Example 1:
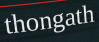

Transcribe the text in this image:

thongath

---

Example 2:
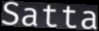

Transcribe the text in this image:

Satta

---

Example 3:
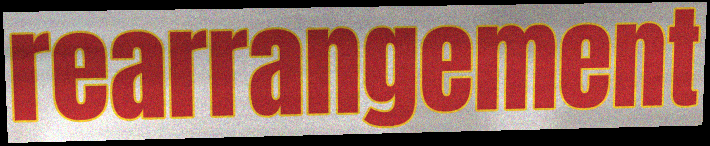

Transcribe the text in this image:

rearrangement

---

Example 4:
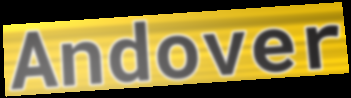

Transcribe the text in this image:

Andover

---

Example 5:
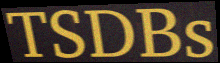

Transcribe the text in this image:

TSDBs